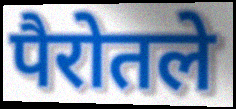
पैरोतले